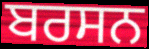
ਬਰਸਨ